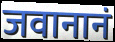
जवानानं